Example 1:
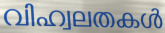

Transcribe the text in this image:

വിഹ്വലതകൾ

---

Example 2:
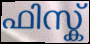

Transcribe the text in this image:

ഫിസ്ക്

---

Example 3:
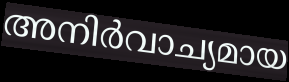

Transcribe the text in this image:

അനിർവാച്യമായ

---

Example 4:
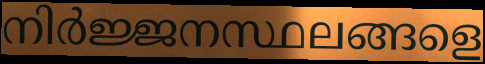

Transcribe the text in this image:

നിർജ്ജനസ്ഥലങ്ങളെ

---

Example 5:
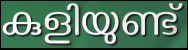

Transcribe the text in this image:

കുളിയുണ്ട്